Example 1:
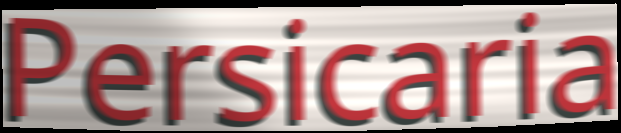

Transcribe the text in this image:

Persicaria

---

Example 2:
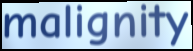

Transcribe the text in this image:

malignity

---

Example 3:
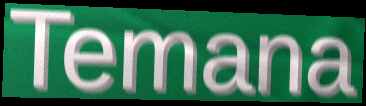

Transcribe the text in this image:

Temana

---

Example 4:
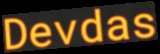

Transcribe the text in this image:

Devdas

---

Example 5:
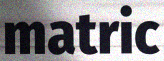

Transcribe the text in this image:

matric